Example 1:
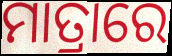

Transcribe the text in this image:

ମାତ୍ରାରେ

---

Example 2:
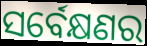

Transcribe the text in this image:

ସର୍ବେକ୍ଷଣର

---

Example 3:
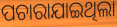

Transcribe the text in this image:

ପଚାରାଯାଇଥିଲା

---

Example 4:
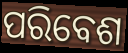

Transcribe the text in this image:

ପରିବେଶ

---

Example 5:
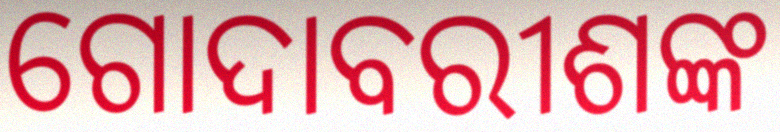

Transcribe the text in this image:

ଗୋଦାବରୀଶଙ୍କ